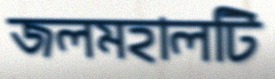
জলমহালটি